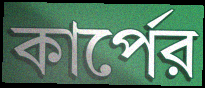
কার্পের